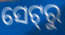
ସେଟ୍‌ରୁ